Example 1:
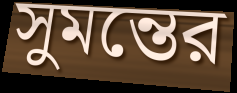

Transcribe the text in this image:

সুমন্তের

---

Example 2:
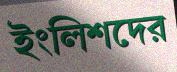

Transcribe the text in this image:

ইংলিশদের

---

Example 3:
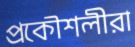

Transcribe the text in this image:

প্রকৌশলীরা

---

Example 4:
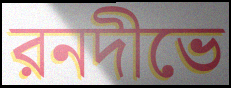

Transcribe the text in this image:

রনদীভে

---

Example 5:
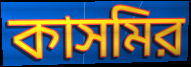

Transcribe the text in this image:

কাসমির